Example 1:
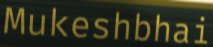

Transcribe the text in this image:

Mukeshbhai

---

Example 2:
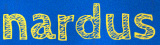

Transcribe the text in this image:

nardus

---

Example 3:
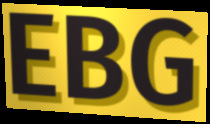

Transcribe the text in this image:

EBG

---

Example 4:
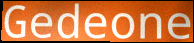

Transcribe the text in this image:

Gedeone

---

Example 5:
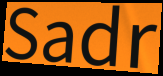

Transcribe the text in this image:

Sadr